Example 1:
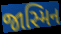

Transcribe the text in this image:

જાસ્મિન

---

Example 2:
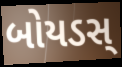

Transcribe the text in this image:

બોયડસ્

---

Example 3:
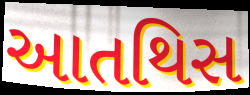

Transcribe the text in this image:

આતથિસ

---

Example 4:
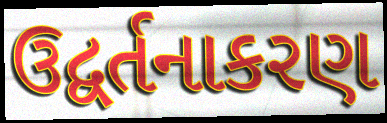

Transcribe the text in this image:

ઉદ્વર્તનાકરણ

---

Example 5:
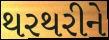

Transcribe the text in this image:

થરથરીને